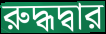
রুদ্ধদ্বার